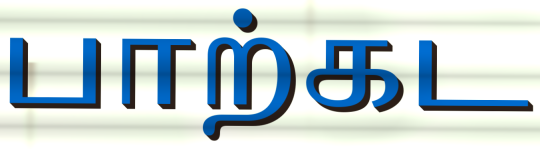
பாற்கட